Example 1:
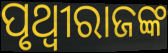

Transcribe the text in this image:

ପୃଥ୍ୱୀରାଜଙ୍କ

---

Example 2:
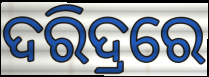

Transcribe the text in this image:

ଦରିଦ୍ରରେ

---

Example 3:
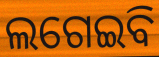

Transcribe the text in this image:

ଲଗେଇବି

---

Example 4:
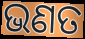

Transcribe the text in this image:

ଭଣତ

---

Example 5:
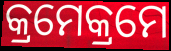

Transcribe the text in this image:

କ୍ରମେକ୍ରମେ